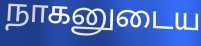
நாகனுடைய